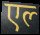
एल्‍